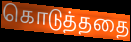
கொடுத்ததை